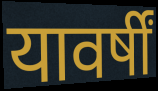
यावर्षीं